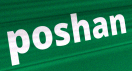
poshan